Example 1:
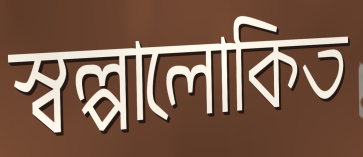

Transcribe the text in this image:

স্বল্পালোকিত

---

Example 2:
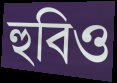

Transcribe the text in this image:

হুবিও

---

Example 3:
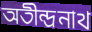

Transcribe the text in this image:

অতীন্দ্রনাথ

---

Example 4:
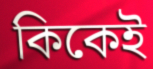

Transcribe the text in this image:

কিকেই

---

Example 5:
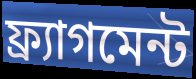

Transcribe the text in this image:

ফ্র্যাগমেন্ট